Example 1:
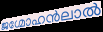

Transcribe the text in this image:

ജഗ്മോഹൻലാൽ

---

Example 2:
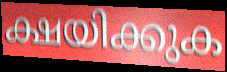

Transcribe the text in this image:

ക്ഷയിക്കുക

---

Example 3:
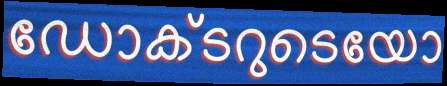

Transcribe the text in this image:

ഡോക്ടറുടെയോ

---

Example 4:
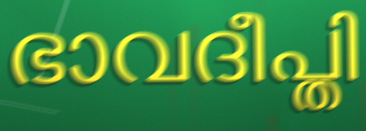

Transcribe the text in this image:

ഭാവദീപ്തി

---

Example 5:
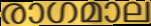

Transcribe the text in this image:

രാഗമാല